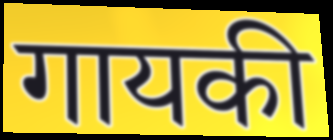
गायकी